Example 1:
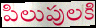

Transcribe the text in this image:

పిలుపులకి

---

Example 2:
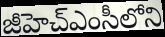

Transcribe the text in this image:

జీహెచ్ఎంసీలోని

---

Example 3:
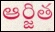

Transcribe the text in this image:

ఆర్జిత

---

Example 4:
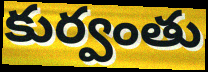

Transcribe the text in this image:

కుర్వంతు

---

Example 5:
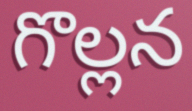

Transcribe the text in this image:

గొల్లన